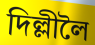
দিল্লীলৈ